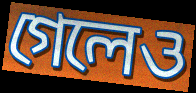
গেলেও